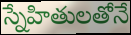
స్నేహితులతోనే